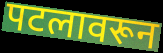
पटलावरून